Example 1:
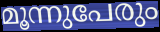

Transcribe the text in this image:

മൂന്നുപേരും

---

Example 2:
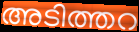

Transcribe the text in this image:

അടിത്തറ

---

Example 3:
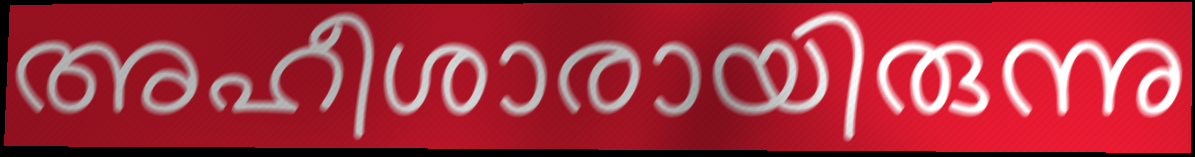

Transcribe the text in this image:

അഹീശാരായിരുന്നു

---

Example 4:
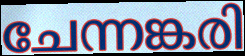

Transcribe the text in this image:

ചേന്നങ്കരി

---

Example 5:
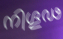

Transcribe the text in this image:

നിഗൂഢ